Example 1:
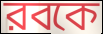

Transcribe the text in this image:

রবকে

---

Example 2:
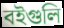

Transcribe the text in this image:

বইগুলি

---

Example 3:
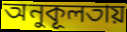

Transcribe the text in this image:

অনুকূলতায়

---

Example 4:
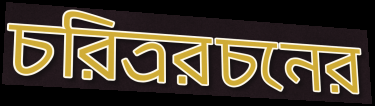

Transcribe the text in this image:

চরিত্ররচনের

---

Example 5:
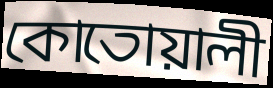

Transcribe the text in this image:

কোতোয়ালী